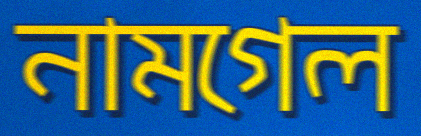
নামগেল